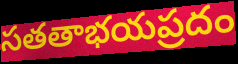
సతతాభయప్రదం